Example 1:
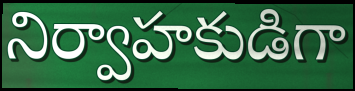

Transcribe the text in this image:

నిర్వాహకుడిగా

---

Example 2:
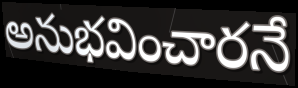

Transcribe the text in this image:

అనుభవించారనే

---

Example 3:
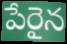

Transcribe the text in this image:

పేరైన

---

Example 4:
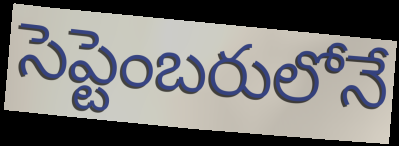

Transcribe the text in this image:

సెప్టెంబరులోనే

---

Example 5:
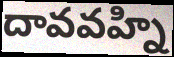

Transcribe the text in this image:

దావవహ్ని